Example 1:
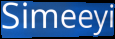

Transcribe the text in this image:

Simeeyi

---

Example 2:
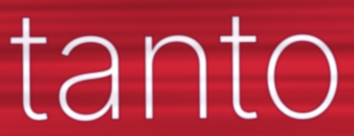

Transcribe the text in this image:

tanto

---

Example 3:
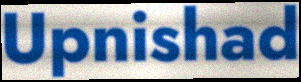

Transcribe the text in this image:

Upnishad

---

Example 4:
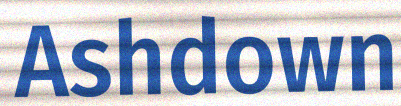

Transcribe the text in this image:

Ashdown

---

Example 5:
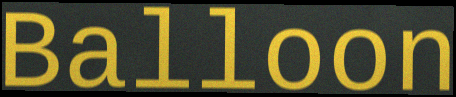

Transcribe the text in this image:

Balloon